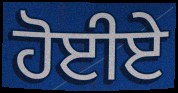
ਹੋਈਏ